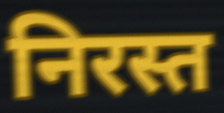
निरस्त